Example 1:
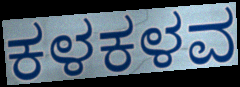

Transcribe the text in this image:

ಕಳಕಳವ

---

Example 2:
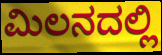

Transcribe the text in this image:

ಮಿಲನದಲ್ಲಿ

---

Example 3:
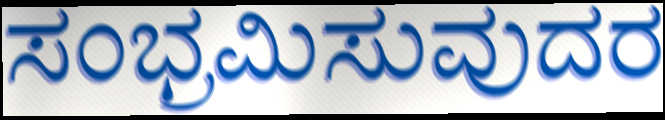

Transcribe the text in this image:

ಸಂಭ್ರಮಿಸುವುದರ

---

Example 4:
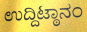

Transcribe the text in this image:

ಉದ್ದಿಟ್ಠಾನಂ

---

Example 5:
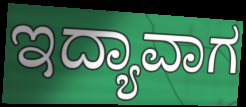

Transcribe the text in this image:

ಇದ್ಯಾವಾಗ